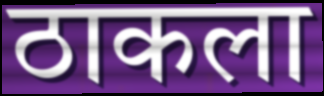
ठाकला